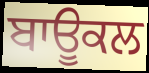
ਬਾਊਕਲ